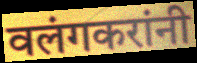
वलंगकरांनी